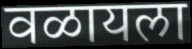
वळायला